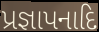
પ્રજ્ઞાપનાદિ